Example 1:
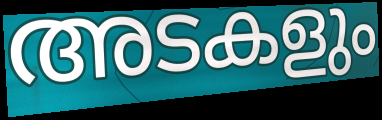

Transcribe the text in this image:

അടകളും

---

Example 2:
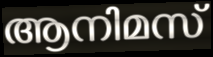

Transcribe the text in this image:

ആനിമസ്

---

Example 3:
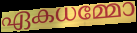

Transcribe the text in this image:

ഏകധമ്മോ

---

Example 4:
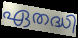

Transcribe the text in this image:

ഏതദ്ധി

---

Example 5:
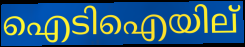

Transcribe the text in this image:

ഐടിഐയില്